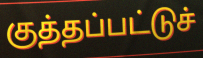
குத்தப்பட்டுச்